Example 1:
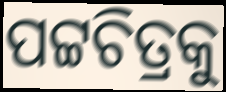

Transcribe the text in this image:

ପଟ୍ଟଚିତ୍ରକୁ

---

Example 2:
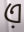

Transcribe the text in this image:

ଏ଼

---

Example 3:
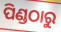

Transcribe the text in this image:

ପିଣ୍ଡଠାରୁ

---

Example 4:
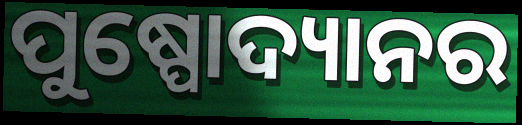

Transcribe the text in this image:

ପୁଷ୍ପୋଦ୍ୟାନର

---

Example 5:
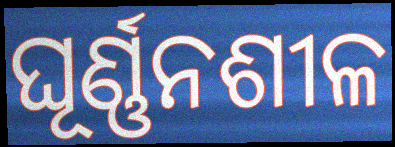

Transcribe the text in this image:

ଘୂର୍ଣ୍ଣନଶୀଳ